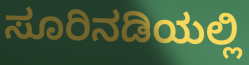
ಸೂರಿನಡಿಯಲ್ಲಿ